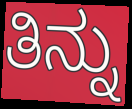
ತಿನ್ನು